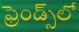
ఫ్రెండ్స్‌లో